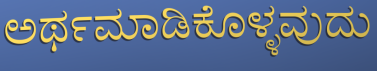
ಅರ್ಥಮಾಡಿಕೊಳ್ಳವುದು